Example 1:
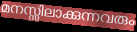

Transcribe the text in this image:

മനസ്സിലാക്കുന്നവരും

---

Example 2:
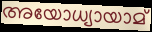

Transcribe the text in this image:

അയോധ്യായാമ്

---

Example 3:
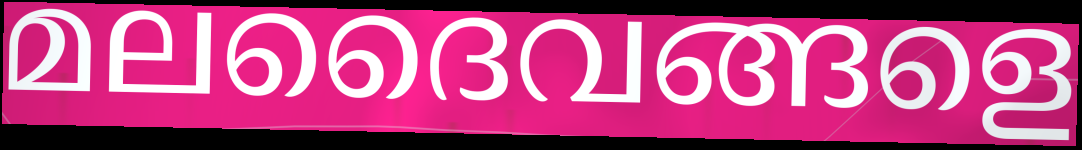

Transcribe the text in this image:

മലദൈവങ്ങളെ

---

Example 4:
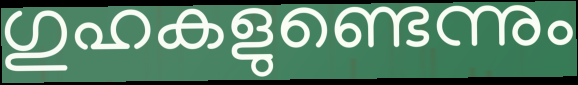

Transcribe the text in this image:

ഗുഹകളുണ്ടെന്നും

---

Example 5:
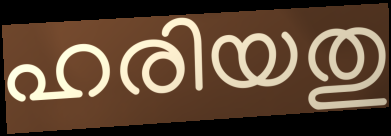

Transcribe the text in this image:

ഹരിയതു